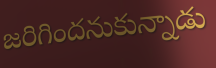
జరిగిందనుకున్నాడు